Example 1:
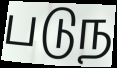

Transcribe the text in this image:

படுந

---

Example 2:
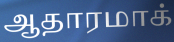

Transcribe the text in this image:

ஆதாரமாக்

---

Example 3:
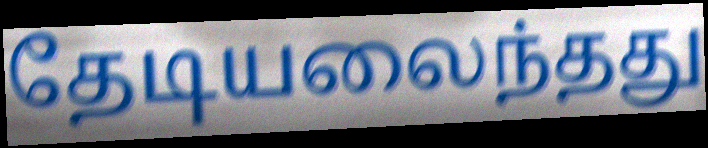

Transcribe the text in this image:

தேடியலைந்தது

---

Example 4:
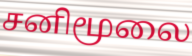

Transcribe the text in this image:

சனிமூலை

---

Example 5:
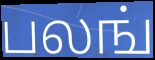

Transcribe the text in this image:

பலங்